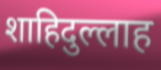
शाहिदुल्लाह